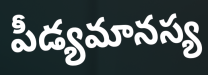
పీడ్యమానస్య